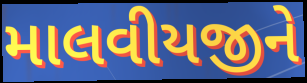
માલવીયજીને